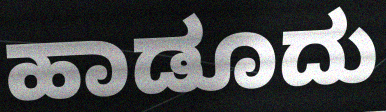
ಹಾಡೂದು